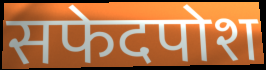
सफेदपोश